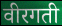
वीरगती